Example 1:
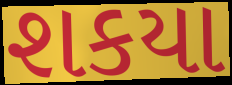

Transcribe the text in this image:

શકયા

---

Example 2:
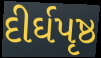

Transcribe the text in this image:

દીર્ઘપૃષ્ઠ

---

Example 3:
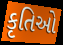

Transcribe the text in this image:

કૃતિઓ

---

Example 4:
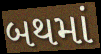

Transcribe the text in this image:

બથમાં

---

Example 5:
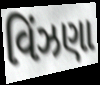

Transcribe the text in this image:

વિંઝણા